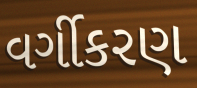
વર્ગીકરણ